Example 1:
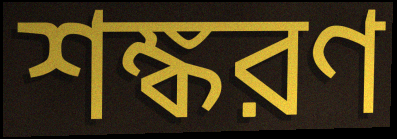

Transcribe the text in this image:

শঙ্করণ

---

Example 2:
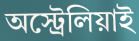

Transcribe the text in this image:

অস্ট্রেলিয়াই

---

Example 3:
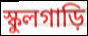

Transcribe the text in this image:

স্কুলগাড়ি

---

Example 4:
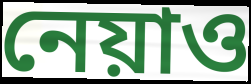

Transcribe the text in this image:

নেয়াও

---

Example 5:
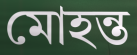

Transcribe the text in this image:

মোহন্ত